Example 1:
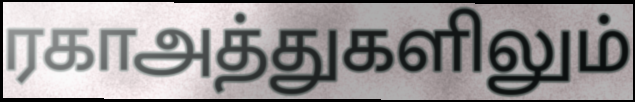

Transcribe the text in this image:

ரகாஅத்துகளிலும்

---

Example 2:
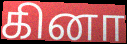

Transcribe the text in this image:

கினா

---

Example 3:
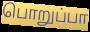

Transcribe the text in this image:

பொறுப்பா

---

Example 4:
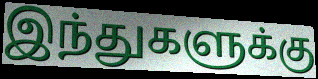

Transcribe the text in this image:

இந்துகளுக்கு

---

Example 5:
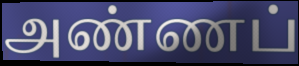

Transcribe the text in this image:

அண்ணப்